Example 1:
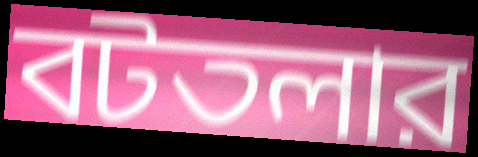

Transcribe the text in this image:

বটতলার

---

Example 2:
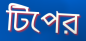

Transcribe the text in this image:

টিপের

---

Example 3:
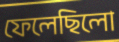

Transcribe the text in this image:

ফেলেছিলো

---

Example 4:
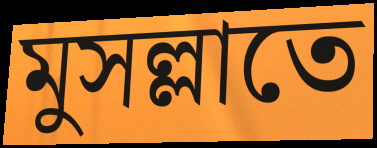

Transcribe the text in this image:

মুসল্লাতে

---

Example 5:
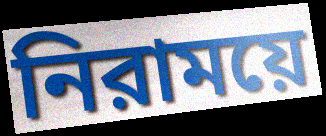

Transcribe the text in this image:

নিরাময়ে